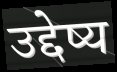
उद्देष्य